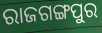
ରାଜଗଙ୍ଗପୁର